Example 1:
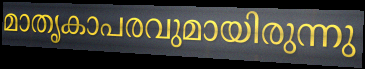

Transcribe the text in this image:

മാതൃകാപരവുമായിരുന്നു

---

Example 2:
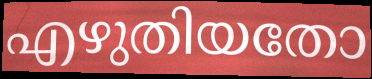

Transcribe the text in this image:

എഴുതിയതോ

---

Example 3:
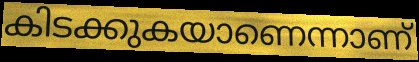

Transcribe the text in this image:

കിടക്കുകയാണെന്നാണ്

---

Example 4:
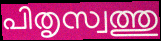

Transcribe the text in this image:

പിതൃസ്വത്തു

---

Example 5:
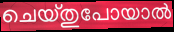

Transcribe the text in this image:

ചെയ്തുപോയാൽ